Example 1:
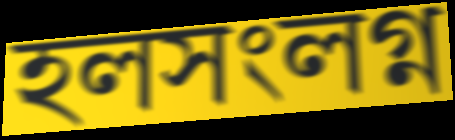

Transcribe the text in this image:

হলসংলগ্ন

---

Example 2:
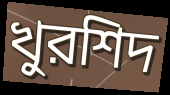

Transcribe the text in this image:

খুরশিদ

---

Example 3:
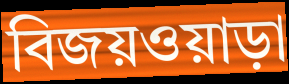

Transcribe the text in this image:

বিজয়ওয়াড়া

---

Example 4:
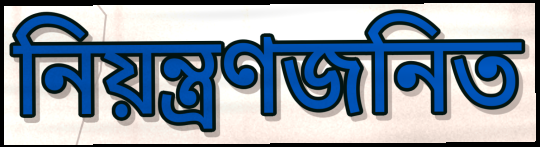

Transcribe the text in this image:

নিয়ন্ত্রণজনিত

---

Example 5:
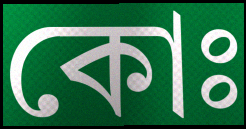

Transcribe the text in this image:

কোঃ